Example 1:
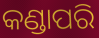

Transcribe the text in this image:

କଣ୍ଡାପରି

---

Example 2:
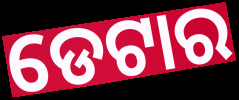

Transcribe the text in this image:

ଡେଟାର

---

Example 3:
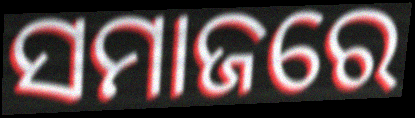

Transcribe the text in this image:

ସମାଜରେ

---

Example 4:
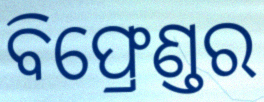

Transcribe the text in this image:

ବିଫ୍ରେଣ୍ଡର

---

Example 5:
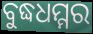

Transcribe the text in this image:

ବୁଦ୍ଧଧମ୍ମର